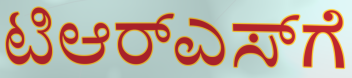
ಟಿಆರ್‌ಎಸ್‌ಗೆ